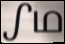
ഽഥ